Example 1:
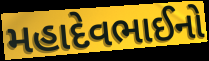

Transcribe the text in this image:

મહાદેવભાઈનો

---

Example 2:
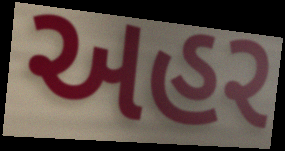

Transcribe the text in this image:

અહર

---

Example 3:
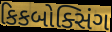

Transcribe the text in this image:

કિકબોક્સિંગ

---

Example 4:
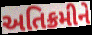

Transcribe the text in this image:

અતિક્રમીને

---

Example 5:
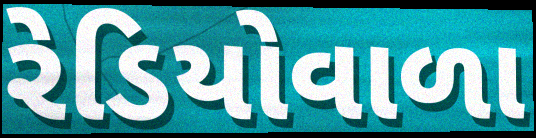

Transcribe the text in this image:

રેડિયોવાળા